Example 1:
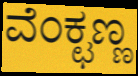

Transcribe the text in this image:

ವೆಂಕ್ಟಣ್ಣ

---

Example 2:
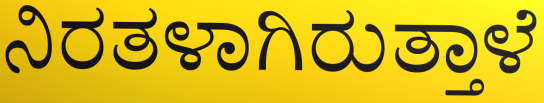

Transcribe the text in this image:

ನಿರತಳಾಗಿರುತ್ತಾಳೆ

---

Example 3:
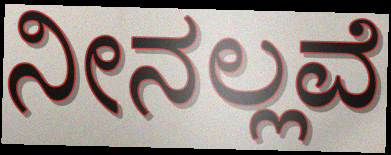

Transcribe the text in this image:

ನೀನಲ್ಲವೆ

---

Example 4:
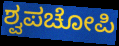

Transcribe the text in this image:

ಶ್ವಪಚೋಪಿ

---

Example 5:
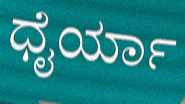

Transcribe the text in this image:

ಧೈರ್ಯಾ